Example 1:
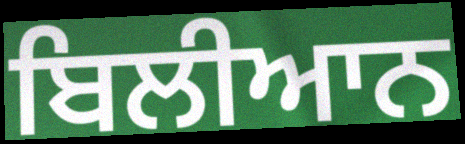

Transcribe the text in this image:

ਬਿਲੀਆਨ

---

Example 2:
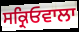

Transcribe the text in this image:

ਸਕ੍ਰਿਓਵਾਲਾ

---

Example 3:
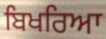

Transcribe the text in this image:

ਬਿਖਰਿਆ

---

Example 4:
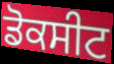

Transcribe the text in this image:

ਡੋਕਸੀਟ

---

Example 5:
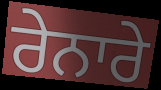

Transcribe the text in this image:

ਰੇਨਾਰੇ